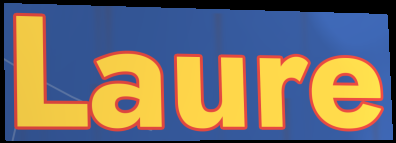
Laure